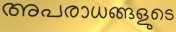
അപരാധങ്ങളുടെ